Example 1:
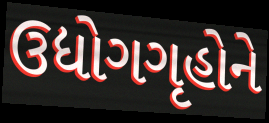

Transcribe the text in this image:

ઉદ્યોગગૃહોને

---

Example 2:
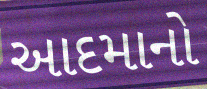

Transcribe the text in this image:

આદમાનો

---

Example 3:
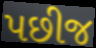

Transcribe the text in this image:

પછીજ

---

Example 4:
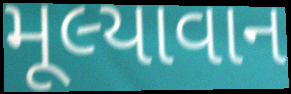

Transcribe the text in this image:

મૂલ્યાવાન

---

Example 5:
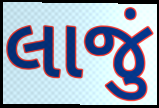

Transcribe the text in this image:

લાજું